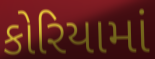
કોરિયામાં